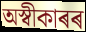
অস্বীকাৰৰ